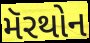
મૅરથોન